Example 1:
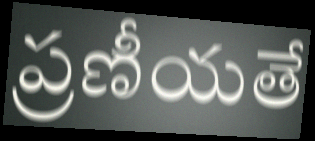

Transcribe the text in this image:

ప్రణీయతే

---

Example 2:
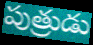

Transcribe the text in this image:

పుత్రుడు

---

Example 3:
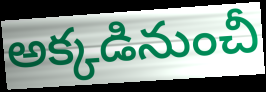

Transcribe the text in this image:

అక్కడినుంచీ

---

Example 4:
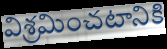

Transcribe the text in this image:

విశ్రమించటానికి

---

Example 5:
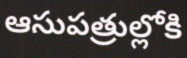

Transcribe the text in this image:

ఆసుపత్రుల్లోకి